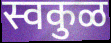
स्वकुळ